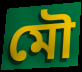
মৌ